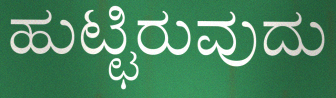
ಹುಟ್ಟಿರುವುದು